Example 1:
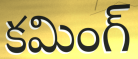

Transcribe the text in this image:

కమింగ్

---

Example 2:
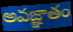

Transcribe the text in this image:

అవజ్ఞాతం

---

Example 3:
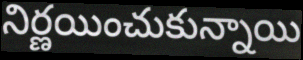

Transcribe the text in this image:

నిర్ణయించుకున్నాయి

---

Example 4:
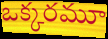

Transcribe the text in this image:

ఒక్కరమూ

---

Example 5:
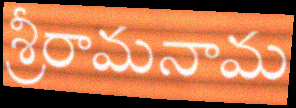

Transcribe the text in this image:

శ్రీరామనామ